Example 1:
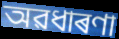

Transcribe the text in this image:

অৱধাৰণা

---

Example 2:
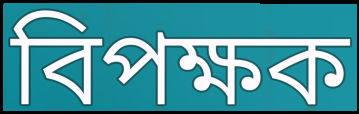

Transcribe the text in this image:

বিপক্ষক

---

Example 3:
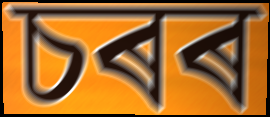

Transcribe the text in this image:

চৰৰ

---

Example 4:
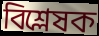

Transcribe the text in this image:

বিশ্লেষক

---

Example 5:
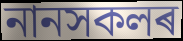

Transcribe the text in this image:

নানসকলৰ